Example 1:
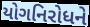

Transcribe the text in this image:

યોગનિરોધને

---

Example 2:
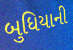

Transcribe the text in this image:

બુધિયાની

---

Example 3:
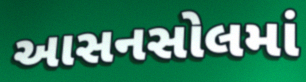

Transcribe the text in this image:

આસનસોલમાં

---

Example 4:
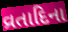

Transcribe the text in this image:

વ્રતાદિના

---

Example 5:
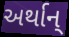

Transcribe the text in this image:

અર્થાન્